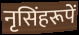
नृसिंहरूपें